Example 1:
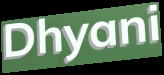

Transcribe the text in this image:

Dhyani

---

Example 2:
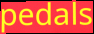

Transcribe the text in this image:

pedals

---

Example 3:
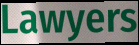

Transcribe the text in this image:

Lawyers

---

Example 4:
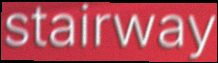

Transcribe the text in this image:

stairway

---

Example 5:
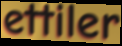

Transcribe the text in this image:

ettiler